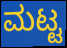
ಮಟ್ಟ